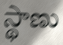
స్థాణు